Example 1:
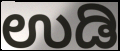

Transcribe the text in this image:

ಉಡಿ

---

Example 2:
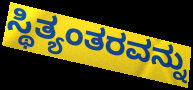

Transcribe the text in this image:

ಸ್ಥಿತ್ಯಂತರವನ್ನು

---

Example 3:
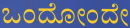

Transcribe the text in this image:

ಒಂದೋಂದೇ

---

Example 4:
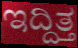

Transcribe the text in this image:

ಇದ್ದಿತ್ತ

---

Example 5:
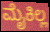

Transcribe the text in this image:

ಮೈಕಿಲ್ಲ